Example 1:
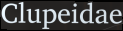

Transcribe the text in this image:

Clupeidae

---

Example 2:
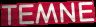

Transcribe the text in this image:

TEMNE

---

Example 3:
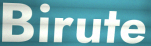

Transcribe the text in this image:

Birute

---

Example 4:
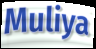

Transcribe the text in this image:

Muliya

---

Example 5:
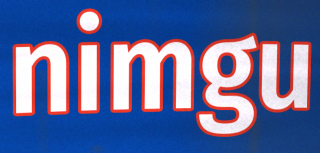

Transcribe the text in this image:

nimgu